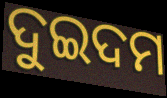
ଦୁଇଦମ